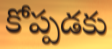
కోప్పడకు